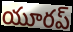
యూరప్